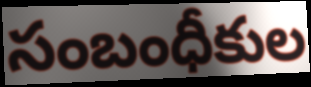
సంబంధీకుల